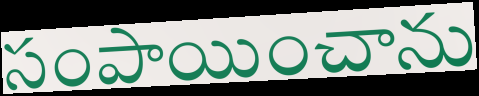
సంపాయించాను